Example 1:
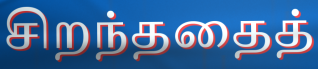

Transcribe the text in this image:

சிறந்ததைத்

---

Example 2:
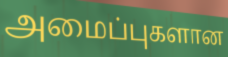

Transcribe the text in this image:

அமைப்புகளான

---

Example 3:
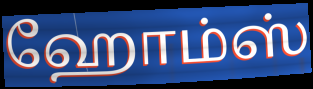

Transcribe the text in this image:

ஹோம்ஸ்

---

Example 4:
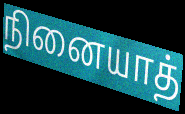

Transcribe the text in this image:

நினையாத்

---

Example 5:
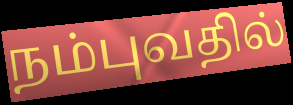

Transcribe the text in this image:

நம்புவதில்